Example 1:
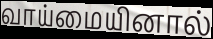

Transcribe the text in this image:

வாய்மையினால்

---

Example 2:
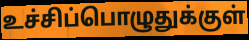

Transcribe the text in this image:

உச்சிப்பொழுதுக்குள்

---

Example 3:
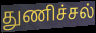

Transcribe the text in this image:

துணிச்சல்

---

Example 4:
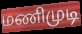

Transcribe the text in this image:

மணிமுடி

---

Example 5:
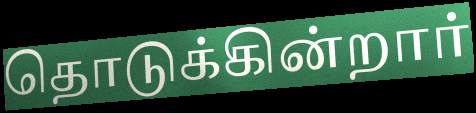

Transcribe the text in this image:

தொடுக்கின்றார்